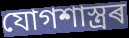
যোগশাস্ত্ৰৰ